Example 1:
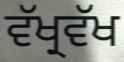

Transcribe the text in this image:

ਵੱਖ੍ਰਵੱਖ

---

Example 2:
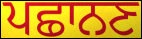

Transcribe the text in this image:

ਪਛਾਨਣ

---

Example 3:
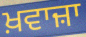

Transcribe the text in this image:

ਖ਼ਵਾਜ਼ਾ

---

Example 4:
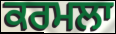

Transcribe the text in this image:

ਕਰਮਲਾ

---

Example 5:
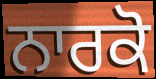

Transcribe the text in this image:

ਨਾਰਕੋ